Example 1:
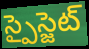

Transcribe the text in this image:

స్పైస్జెట్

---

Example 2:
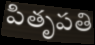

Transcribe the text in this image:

పితృపతి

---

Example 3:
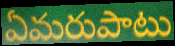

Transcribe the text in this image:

ఏమరుపాటు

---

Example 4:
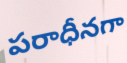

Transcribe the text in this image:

పరాధీనగా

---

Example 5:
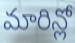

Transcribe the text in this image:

మారిన్లో